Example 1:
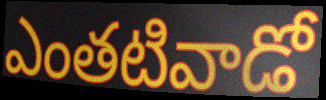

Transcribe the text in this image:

ఎంతటివాడో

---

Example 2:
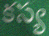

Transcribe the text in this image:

కస్య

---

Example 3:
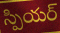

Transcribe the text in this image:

స్పియర్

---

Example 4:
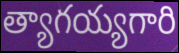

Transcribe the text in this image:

త్యాగయ్యగారి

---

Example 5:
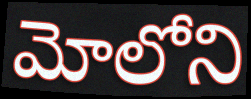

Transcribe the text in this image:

మోలోని